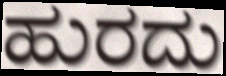
ಹುರದು